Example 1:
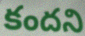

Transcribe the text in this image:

కందని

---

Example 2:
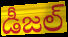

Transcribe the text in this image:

డీజల్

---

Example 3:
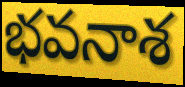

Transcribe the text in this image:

భవనాశ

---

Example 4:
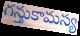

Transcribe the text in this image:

గన్తుకామస్య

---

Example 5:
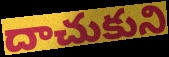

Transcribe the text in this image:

దాచుకుని